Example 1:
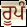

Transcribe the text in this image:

ਰੂਪੰ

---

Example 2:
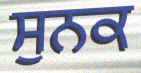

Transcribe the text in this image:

ਸੁਨਕ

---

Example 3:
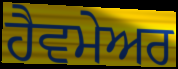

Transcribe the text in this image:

ਹੈਵਮੇਅਰ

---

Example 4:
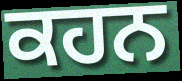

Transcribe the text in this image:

ਕਹਨ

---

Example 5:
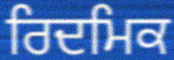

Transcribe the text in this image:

ਰਿਦਮਿਕ